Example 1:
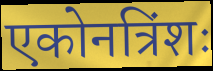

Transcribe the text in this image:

एकोनत्रिंशः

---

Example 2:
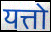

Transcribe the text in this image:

यत्तो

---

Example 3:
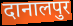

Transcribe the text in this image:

दानालपुर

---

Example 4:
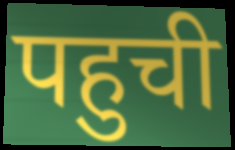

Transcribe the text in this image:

पहुची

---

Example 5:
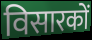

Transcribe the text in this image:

विसारकों